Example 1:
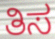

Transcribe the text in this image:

ತಿಸ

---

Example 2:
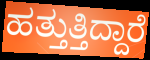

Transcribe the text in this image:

ಹತ್ತುತ್ತಿದ್ದಾರೆ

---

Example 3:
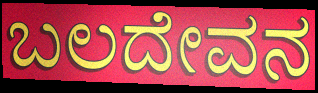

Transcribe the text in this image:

ಬಲದೇವನ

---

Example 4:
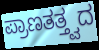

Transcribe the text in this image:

ಪ್ರಾಣತತ್ತ್ವದ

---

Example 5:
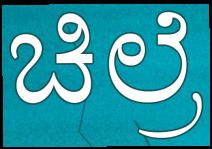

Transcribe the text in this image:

ಚಿಲ್ರೆ